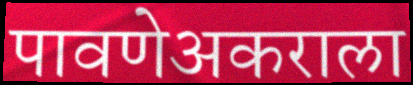
पावणेअकराला